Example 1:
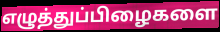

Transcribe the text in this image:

எழுத்துப்பிழைகளை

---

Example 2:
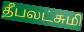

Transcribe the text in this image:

தீபலட்சுமி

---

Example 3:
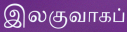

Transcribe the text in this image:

இலகுவாகப்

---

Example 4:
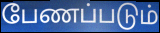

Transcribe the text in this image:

பேணப்படும்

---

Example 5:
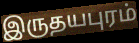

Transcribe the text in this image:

இருதயபுரம்